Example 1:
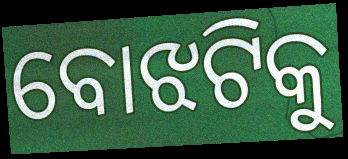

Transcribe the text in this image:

ବୋଝଟିକୁ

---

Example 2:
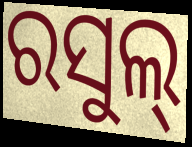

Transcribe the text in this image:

ରସୁଲ୍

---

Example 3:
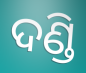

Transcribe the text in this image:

ଦଣ୍ଡି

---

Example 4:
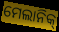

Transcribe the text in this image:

ମେଲାନିକ୍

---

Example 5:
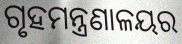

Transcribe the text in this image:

ଗୃହମନ୍ତ୍ରଣାଳୟର